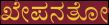
ಖೇಪನತೋ